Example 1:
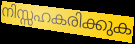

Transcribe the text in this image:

നിസ്സഹകരിക്കുക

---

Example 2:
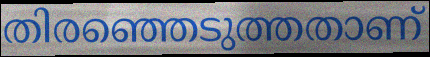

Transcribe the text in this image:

തിരഞ്ഞെടുത്തതാണ്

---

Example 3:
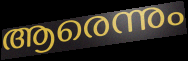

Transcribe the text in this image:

ആരെന്നും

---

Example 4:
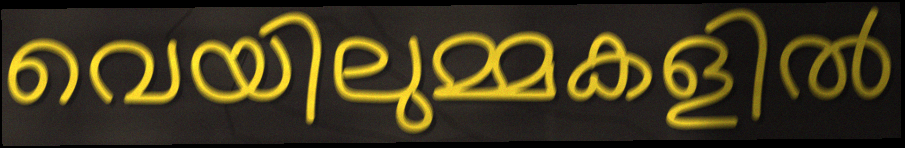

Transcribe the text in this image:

വെയിലുമ്മകളിൽ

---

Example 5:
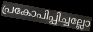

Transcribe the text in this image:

പ്രകോപിപ്പിച്ചല്ലോ